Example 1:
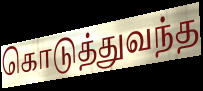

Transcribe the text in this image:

கொடுத்துவந்த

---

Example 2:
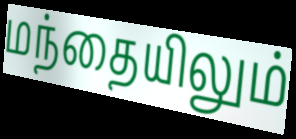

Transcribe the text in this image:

மந்தையிலும்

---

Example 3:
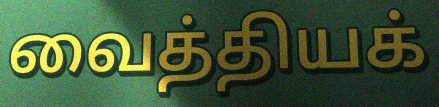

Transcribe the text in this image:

வைத்தியக்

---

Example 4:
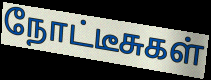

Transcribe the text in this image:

நோட்டீசுகள்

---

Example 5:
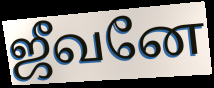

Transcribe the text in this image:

ஜீவனே